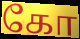
கோ